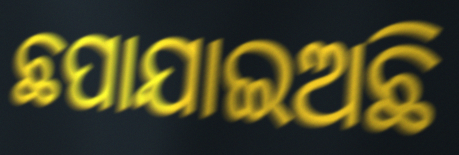
ଛପାଯାଇଅଛି